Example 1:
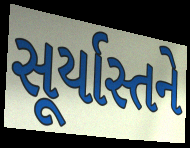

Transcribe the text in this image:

સૂર્યાસ્તને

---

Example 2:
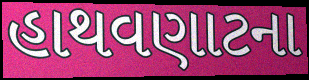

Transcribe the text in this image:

હાથવણાટના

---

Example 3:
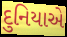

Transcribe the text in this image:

દુનિયાએ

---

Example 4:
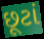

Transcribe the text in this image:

છૂટાં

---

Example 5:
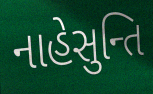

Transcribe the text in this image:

નાહેસુન્તિ